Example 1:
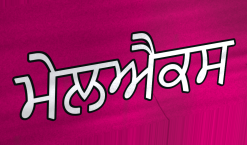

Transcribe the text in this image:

ਮੇਲਐਕਸ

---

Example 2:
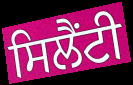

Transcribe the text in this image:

ਸਿਲੈਂਟੀ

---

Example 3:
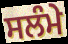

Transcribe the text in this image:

ਸਲੰਮੇ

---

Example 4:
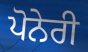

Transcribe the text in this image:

ਪੋਨੇਰੀ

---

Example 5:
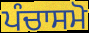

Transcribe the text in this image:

ਪੰਚਾਸਮੋ